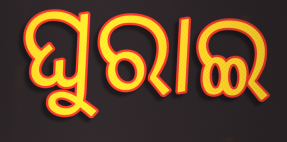
ଘୁରାଇ